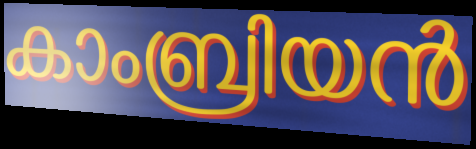
കാംബ്രിയൻ